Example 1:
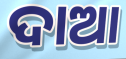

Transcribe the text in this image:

ଦାଆ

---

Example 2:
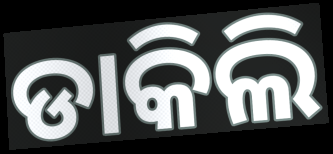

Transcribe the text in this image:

ଡାକିଲି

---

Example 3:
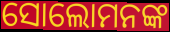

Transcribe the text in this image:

ସୋଲୋମନଙ୍କ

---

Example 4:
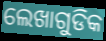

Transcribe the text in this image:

ଲେଖାଗୁଡିକ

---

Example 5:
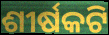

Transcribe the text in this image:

ଶୀର୍ଷକଟି